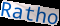
Ratho